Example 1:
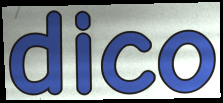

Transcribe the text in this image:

dico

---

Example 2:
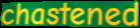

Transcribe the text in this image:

chastened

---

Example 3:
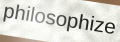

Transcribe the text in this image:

philosophize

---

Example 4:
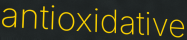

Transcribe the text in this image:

antioxidative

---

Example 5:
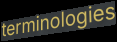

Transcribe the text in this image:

terminologies